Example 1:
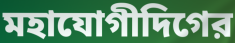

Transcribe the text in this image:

মহাযোগীদিগের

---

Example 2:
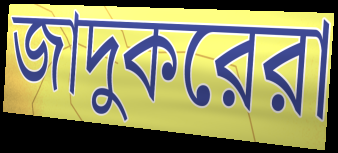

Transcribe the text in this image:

জাদুকরেরা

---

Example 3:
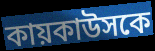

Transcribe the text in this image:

কায়কাউসকে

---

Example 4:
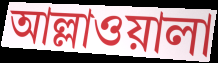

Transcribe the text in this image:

আল্লাওয়ালা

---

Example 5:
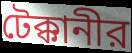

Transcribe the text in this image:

টেক্কানীর